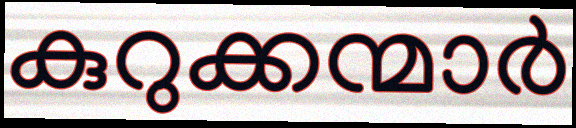
കുറുക്കന്മാർ